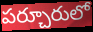
పర్చూరులో